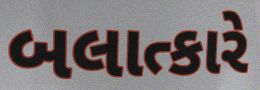
બલાત્કારે